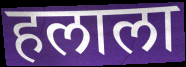
हलाला